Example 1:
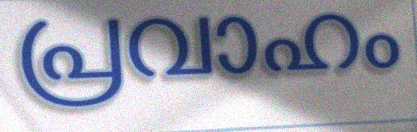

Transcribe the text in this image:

പ്രവാഹം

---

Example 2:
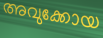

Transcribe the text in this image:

അവുക്കോയ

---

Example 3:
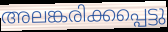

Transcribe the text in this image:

അലങ്കരിക്കപ്പെട്ടു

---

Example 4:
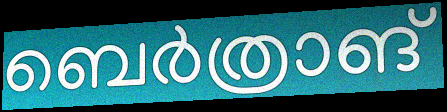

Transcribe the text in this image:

ബെർത്രാങ്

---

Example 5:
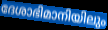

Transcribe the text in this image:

ദേശാഭിമാനിയിലും